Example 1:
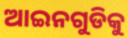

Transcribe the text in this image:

ଆଇନଗୁଡିକୁ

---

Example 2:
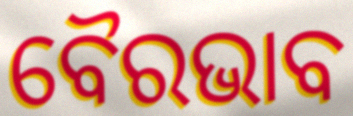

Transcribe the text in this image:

ବୈରଭାବ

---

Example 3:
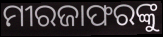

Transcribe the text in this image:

ମୀରଜାଫରଙ୍କୁ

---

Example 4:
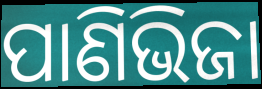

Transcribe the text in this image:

ପାଣିଭିଜା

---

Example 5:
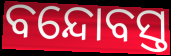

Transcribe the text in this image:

ବନ୍ଦୋବସ୍ତ